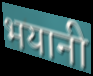
भयानी